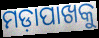
ମଡ଼ାପାଖକୁ